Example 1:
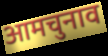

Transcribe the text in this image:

आमचुनाव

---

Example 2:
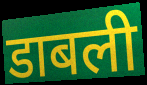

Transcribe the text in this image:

डाबली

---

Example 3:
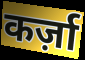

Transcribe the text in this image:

कर्ज़ा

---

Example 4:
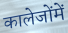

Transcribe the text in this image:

कालेजोंमें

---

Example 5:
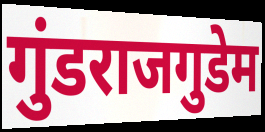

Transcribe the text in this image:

गुंडराजगुडेम